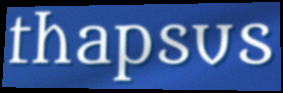
thapsus